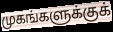
முகங்களுக்குக்